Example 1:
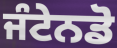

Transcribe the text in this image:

ਜੰਟੇਨਡੋ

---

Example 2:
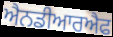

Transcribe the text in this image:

ਐਨਡੀਆਰਐਫ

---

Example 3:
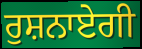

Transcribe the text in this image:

ਰੁਸ਼ਨਾਏਗੀ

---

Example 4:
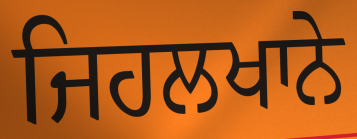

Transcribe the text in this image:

ਜਿਹਲਖਾਨੇ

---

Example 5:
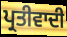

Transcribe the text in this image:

ਪ੍ਰਤੀਵਾਦੀ